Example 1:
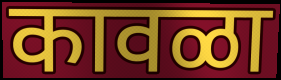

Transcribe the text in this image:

कावळा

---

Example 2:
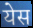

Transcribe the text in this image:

येस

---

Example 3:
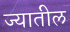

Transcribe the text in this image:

ज्यातील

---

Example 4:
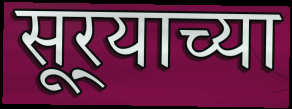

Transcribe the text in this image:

सूर्याच्या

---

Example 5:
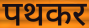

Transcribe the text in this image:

पथकर